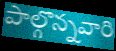
పాల్గొన్నవారి